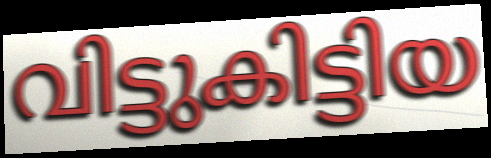
വിട്ടുകിട്ടിയ